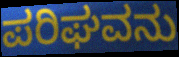
ಪರಿಘವನು